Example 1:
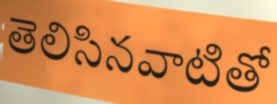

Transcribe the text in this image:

తెలిసినవాటితో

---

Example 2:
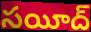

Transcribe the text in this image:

సయీద్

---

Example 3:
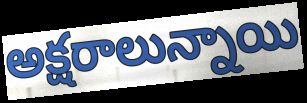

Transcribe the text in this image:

అక్షరాలున్నాయి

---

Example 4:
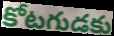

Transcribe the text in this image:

కోటగుడకు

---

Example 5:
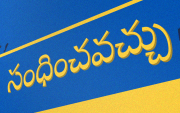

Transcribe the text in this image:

సంధించవచ్చు